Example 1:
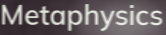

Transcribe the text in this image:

Metaphysics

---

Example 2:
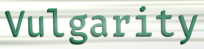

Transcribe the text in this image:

Vulgarity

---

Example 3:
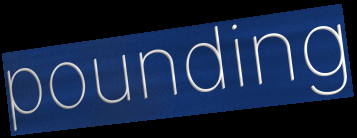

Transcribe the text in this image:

pounding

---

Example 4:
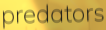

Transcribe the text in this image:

predators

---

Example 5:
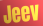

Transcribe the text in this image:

Jeev